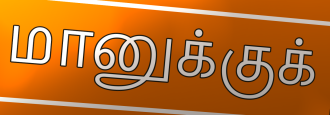
மானுக்குக்